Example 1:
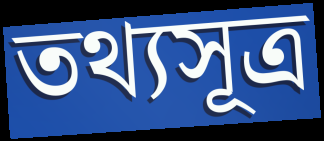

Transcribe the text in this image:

তথ্যসূত্ৰ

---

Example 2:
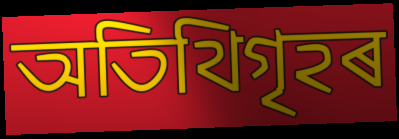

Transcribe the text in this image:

অতিথিগৃহৰ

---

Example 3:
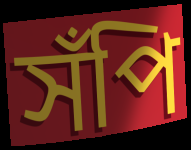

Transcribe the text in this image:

সঁপি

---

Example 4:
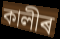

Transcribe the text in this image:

কালীৰ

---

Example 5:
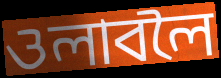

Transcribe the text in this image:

ওলাবলৈ